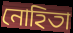
নোহিতা